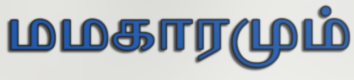
மமகாரமும்